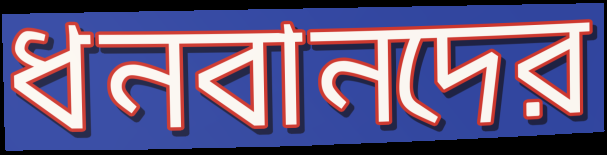
ধনবানদের